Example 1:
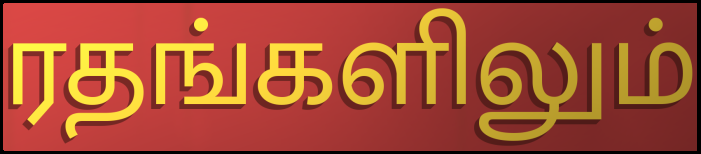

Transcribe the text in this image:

ரதங்களிலும்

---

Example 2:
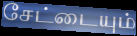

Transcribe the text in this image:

சேட்டையும்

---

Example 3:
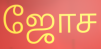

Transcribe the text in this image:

ஜோச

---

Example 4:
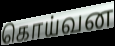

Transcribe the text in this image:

கொய்வன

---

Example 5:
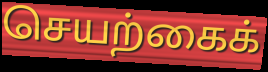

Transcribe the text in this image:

செயற்கைக்